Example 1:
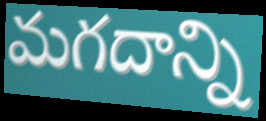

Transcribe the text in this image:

మగదాన్ని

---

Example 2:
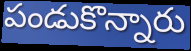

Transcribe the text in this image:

పండుకొన్నారు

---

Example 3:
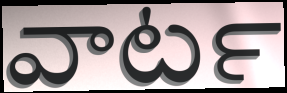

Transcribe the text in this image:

వాటర్‍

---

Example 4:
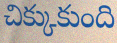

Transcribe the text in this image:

చిక్కుకుంది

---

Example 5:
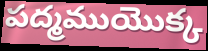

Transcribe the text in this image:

పద్మముయొక్క